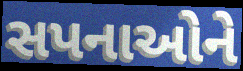
સપનાઓને